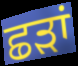
ਛੜਾਂ